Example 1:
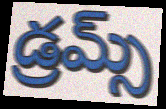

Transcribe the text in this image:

డ్రమ్స్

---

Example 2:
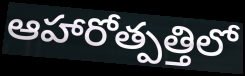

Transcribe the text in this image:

ఆహారోత్పత్తిలో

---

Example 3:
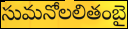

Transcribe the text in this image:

సుమనోలలితంబై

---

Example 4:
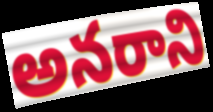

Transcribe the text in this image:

అనరాని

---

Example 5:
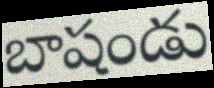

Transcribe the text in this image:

బాషండు